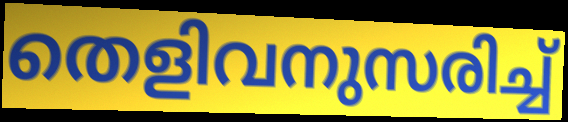
തെളിവനുസരിച്ച്